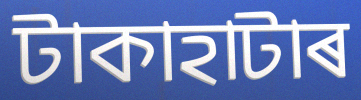
টাকাহাটাৰ